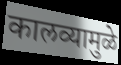
कालव्यामुळे